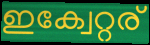
ഇക്വേറ്റര്